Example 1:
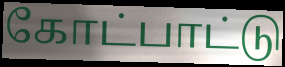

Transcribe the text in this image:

கோட்பாட்டு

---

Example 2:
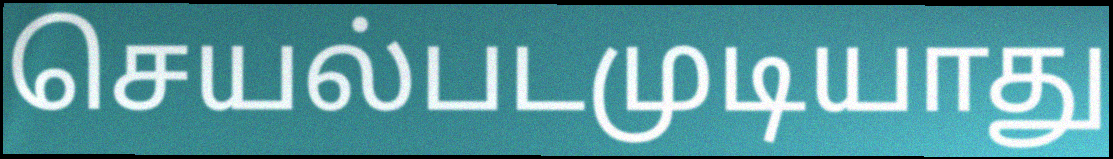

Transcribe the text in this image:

செயல்படமுடியாது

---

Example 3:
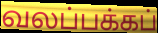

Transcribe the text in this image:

வலப்பக்கப்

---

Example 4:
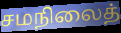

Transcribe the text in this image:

சமநிலைத்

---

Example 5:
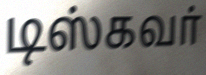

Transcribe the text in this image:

டிஸ்கவர்